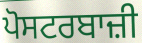
ਪੋਸਟਰਬਾਜ਼ੀ